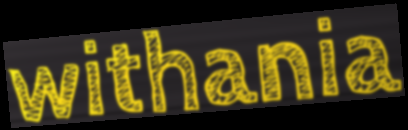
withania